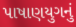
પાષાણયુગનું